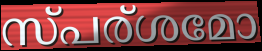
സ്പര്ശമോ